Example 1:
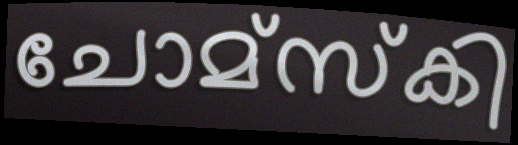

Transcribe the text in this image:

ചോമ്സ്കി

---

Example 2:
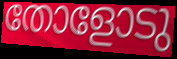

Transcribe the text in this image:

തോളോടു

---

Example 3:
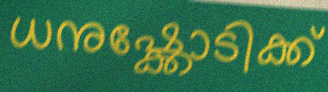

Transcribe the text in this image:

ധനുഷ്ക്കോടിക്ക്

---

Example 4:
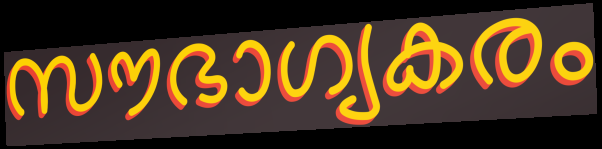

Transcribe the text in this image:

സൗഭാഗ്യകരം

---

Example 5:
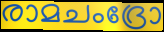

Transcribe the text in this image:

രാമചംദ്രോ